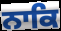
ਨਾਕਿ